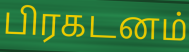
பிரகடனம்